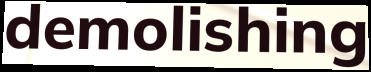
demolishing